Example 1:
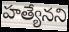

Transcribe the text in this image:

హత్యేనని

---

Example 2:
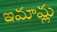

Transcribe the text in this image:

ఇమామ్ల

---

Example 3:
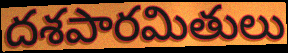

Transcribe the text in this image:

దశపారమితులు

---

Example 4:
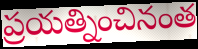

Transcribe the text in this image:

ప్రయత్నించినంత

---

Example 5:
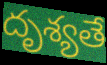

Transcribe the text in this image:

దృశ్యతే